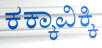
ಕಕ್ಕಾವಿಕ್ಕಿ